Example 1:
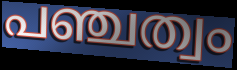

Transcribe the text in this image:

പഞ്ചത്വം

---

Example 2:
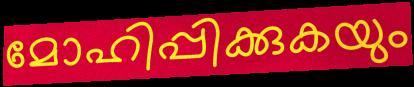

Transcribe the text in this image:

മോഹിപ്പിക്കുകയും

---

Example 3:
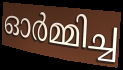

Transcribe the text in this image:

ഓർമ്മിച്ച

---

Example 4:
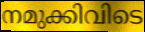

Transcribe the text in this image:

നമുക്കിവിടെ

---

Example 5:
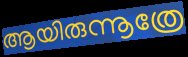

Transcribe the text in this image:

ആയിരുന്നൂത്രേ